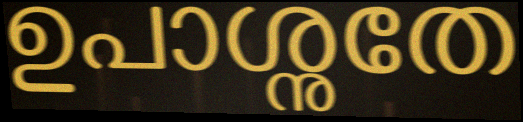
ഉപാശ്നുതേ